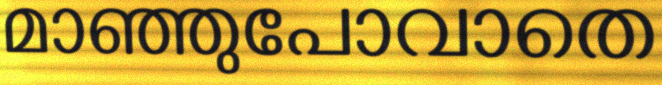
മാഞ്ഞുപോവാതെ